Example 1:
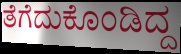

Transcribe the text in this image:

ತೆಗೆದುಕೊಂಡಿದ್ದ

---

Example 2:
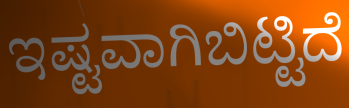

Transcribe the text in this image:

ಇಷ್ಟವಾಗಿಬಿಟ್ಟಿದೆ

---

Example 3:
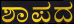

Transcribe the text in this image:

ಶಾಪದ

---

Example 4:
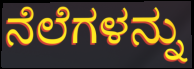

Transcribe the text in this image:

ನೆಲೆಗಳನ್ನು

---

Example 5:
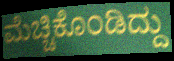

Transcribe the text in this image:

ಮೆಚ್ಚಿಕೊಂಡಿದ್ದು